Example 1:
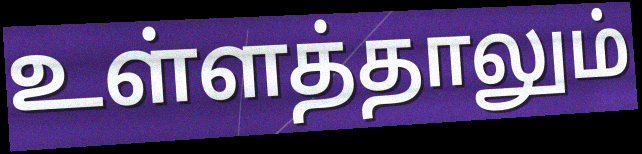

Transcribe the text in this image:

உள்ளத்தாலும்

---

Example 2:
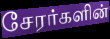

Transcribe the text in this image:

சேரர்களின்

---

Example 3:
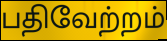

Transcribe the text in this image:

பதிவேற்றம்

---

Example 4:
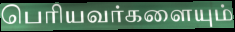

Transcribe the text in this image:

பெரியவர்களையும்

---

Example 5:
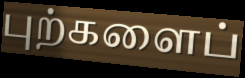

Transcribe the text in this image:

புற்களைப்